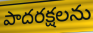
పాదరక్షలను